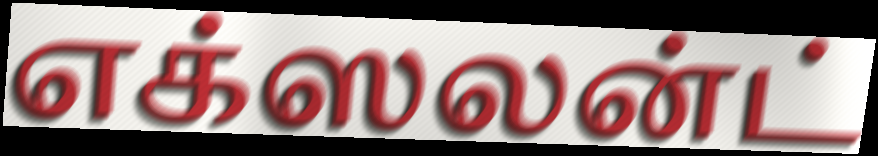
எக்ஸலன்ட்